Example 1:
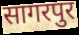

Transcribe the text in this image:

सागरपुर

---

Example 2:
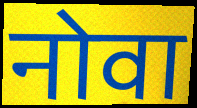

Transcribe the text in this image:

नोवा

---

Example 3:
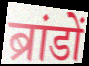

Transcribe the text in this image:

ब्रांडों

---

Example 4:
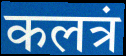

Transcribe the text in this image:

कलत्रं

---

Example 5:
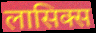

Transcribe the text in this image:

लासिक्स